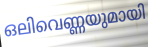
ഒലിവെണ്ണയുമായി